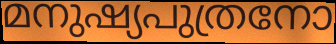
മനുഷ്യപുത്രനോ